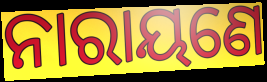
ନାରାୟଣେ